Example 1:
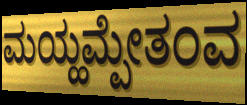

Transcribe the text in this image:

ಮಯ್ಹಮ್ಪೇತಂವ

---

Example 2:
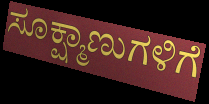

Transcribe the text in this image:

ಸೂಕ್ಷ್ಮಾಣುಗಳಿಗೆ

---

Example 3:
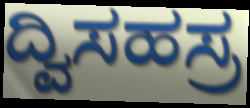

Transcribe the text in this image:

ದ್ವಿಸಹಸ್ರ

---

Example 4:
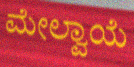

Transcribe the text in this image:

ಮೇಲ್ವಾಯೆ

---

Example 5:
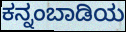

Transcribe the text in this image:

ಕನ್ನಂಬಾಡಿಯ